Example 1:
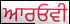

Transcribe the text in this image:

ਆਰਓਵੀ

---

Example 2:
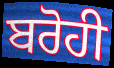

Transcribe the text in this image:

ਬਰੋਹੀ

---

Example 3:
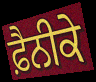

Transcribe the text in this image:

ਫ਼ੈਨੀਕੇ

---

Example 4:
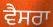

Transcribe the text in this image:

ਵੈਸਰਾ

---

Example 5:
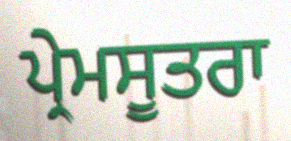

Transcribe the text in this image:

ਪ੍ਰੇਮਸੂਤਰਾ